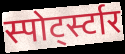
स्पोर्ट्स्टार